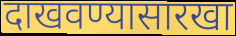
दाखवण्यासारखा